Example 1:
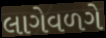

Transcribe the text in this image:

લાગેવળગે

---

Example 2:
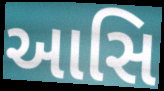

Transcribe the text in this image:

આસિ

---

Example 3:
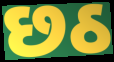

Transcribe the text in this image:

છઠ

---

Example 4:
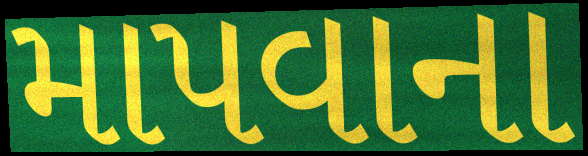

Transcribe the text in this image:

માપવાના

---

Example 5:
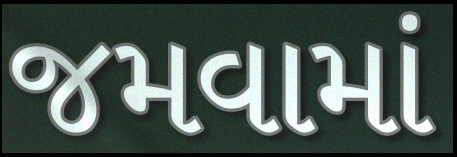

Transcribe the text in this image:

જમવામાં